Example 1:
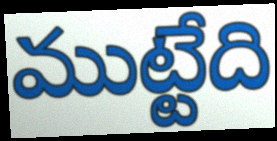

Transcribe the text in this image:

ముట్టేది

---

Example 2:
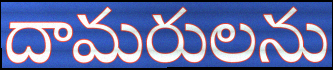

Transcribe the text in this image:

దామరులను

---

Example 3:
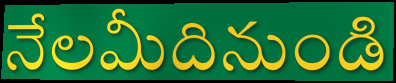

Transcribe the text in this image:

నేలమీదినుండి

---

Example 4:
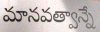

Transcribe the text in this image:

మానవత్వాన్నే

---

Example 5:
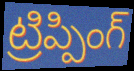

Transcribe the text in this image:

ట్రిప్పింగ్